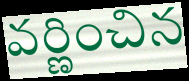
వర్ణించిన